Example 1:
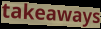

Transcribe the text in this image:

takeaways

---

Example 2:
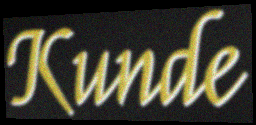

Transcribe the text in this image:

Kunde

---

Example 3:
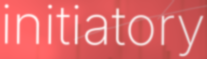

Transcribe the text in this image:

initiatory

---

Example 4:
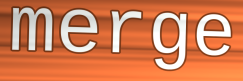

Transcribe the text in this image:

merge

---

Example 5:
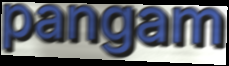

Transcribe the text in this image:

pangam